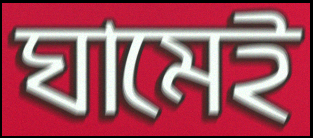
ঘামেই